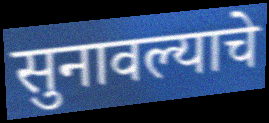
सुनावल्याचे